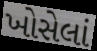
ખોસેલાં